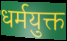
धर्मयुक्त